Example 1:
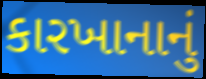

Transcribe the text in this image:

કારખાનાનું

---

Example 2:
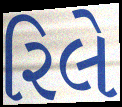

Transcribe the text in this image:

રિલે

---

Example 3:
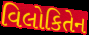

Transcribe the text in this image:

વિલોકિતેન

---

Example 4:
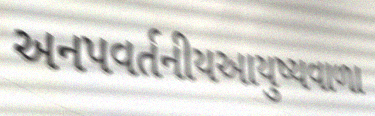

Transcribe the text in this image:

અનપવર્તનીયઆયુષ્યવાળા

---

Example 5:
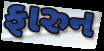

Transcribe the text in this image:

ફારુન